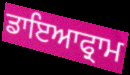
ਡਾਇਆਫ੍ਰਾਮ